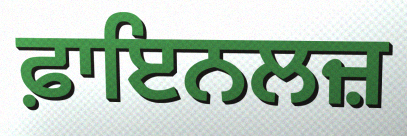
ਫ਼ਾਇਨਲਜ਼